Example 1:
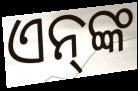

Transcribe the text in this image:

ଏନ୍‌ଙ୍କ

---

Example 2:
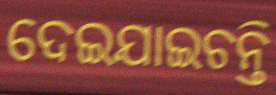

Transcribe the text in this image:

ଦେଇଯାଇଚନ୍ତି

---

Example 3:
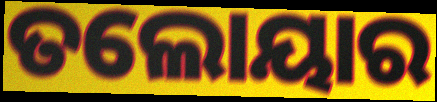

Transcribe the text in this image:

ତଲୋୟାର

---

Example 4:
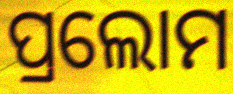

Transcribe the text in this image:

ପ୍ରଲୋମ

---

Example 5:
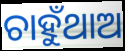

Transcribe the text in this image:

ଚାହୁଁଥାଅ